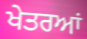
ਖੇਤਰਆਂ